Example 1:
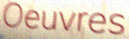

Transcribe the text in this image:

Oeuvres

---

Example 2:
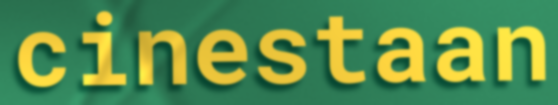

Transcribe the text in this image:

cinestaan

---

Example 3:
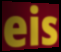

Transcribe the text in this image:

eis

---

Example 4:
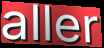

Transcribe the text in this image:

aller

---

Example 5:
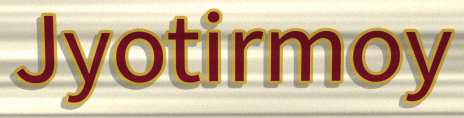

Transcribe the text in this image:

Jyotirmoy